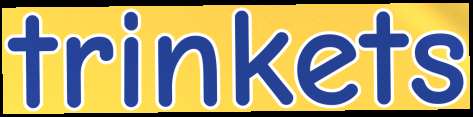
trinkets